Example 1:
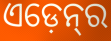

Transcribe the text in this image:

ଏଡ଼େନ୍‍ର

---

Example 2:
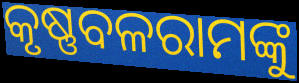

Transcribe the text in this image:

କୃଷ୍ଣବଳରାମଙ୍କୁ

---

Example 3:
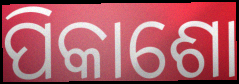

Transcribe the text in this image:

ପିକାଶୋ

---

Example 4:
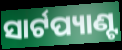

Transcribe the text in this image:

ସାର୍ଟପ୍ୟାଣ୍ଟ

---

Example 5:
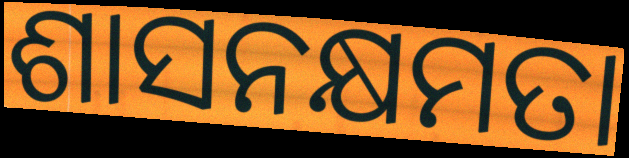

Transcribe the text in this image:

ଶାସନକ୍ଷମତା